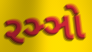
રઞ્ઞો